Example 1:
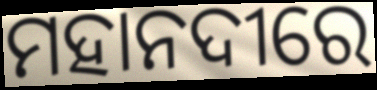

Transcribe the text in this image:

ମହାନଦୀରେ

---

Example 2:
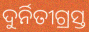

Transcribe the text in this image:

ଦୁର୍ନିତୀଗ୍ରସ୍ତ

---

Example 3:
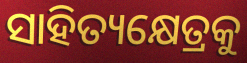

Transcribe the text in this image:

ସାହିତ୍ୟକ୍ଷେତ୍ରକୁ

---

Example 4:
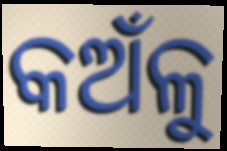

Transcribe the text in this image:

କଅଁଳୁ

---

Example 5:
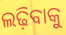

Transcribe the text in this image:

ଲଢ଼ିବାକୁ